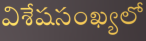
విశేషసంఖ్యలో